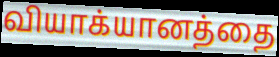
வியாக்யானத்தை